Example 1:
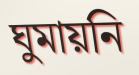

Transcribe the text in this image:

ঘুমায়নি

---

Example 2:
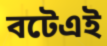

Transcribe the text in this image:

বটেএই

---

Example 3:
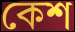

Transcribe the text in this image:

কেশ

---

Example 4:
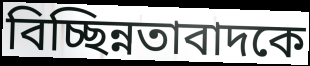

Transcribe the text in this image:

বিচ্ছিন্নতাবাদকে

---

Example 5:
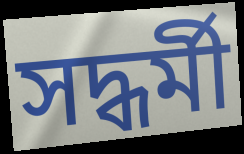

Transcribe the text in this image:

সদ্ধর্মী